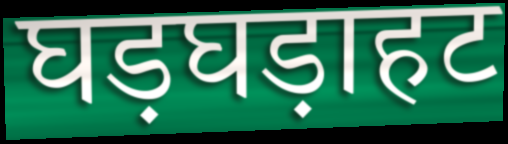
घड़घड़ाहट